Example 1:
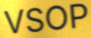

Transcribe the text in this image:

VSOP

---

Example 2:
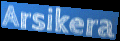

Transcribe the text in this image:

Arsikera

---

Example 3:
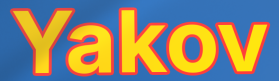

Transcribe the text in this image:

Yakov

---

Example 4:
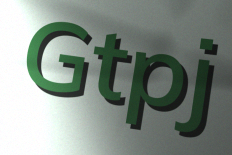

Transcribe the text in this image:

Gtpj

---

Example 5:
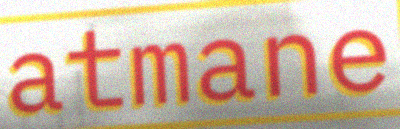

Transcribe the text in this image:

atmane